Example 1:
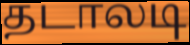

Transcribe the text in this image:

தடாலடி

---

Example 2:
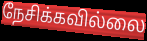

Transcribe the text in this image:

நேசிக்கவில்லை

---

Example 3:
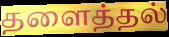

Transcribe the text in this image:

தளைத்தல்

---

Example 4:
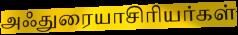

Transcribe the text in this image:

அஃதுரையாசிரியர்கள்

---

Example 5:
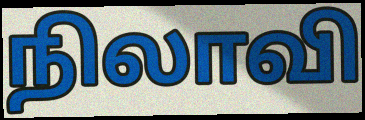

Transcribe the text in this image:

நிலாவி